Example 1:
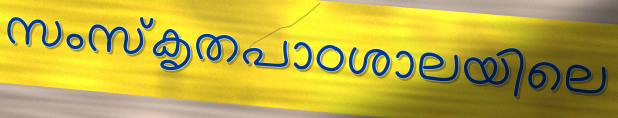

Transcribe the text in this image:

സംസ്കൃതപാഠശാലയിലെ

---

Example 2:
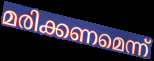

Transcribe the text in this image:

മരിക്കണമെന്ന്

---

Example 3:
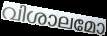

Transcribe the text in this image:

വിശാലമോ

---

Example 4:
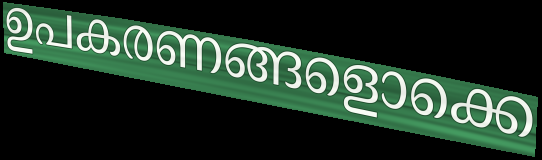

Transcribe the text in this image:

ഉപകരണങ്ങളൊക്കെ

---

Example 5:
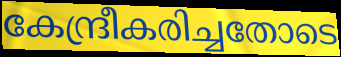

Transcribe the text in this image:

കേന്ദ്രീകരിച്ചതോടെ